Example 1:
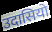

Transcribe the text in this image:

उदासियो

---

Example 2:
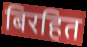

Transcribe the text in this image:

बिरहित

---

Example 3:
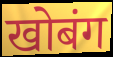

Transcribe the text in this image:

खोबंग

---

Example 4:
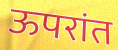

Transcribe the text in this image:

ऊपरांत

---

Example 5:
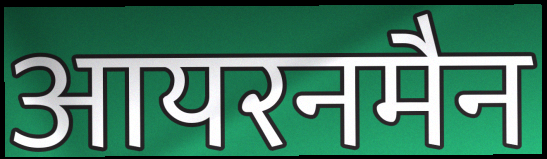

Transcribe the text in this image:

आयरनमैन